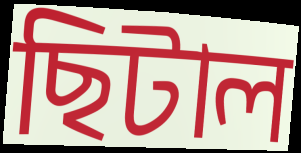
ছিটাল